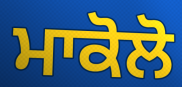
ਮਾਕੋਲੋ